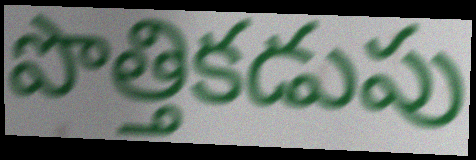
పొత్తికడుపు